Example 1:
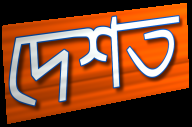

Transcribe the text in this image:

দেশত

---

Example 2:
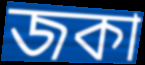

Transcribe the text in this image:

জকা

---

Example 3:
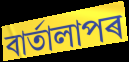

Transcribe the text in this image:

বাৰ্তালাপৰ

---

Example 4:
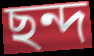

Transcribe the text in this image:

ছন্দ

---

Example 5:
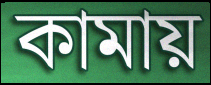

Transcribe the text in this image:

কামায়